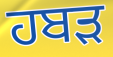
ਹਬੜ